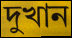
দুখান